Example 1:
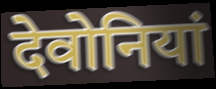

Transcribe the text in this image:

देवोनियां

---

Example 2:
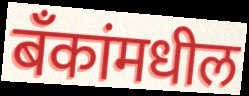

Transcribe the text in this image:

बँकांमधील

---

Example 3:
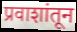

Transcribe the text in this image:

प्रवाशांतून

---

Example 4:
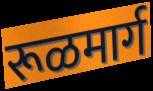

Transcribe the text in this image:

रूळमार्ग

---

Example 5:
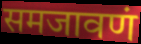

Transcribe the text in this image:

समजावणं